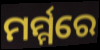
ମର୍ମ୍ମରେ